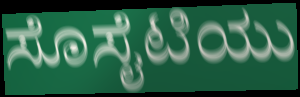
ಸೊಸೈಟಿಯು